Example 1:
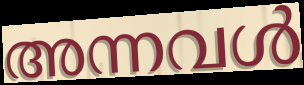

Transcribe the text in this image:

അന്നവൾ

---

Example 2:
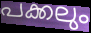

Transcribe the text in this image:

പക്കലും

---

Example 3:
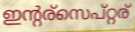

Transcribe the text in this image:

ഇന്റര്സെപ്റ്റര്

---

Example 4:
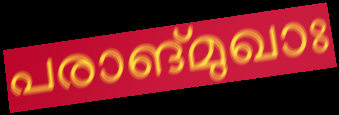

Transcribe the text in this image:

പരാങ്മുഖാഃ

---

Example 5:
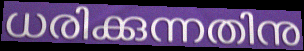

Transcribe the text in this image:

ധരിക്കുന്നതിനു